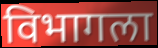
विभागला